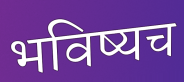
भविष्यच